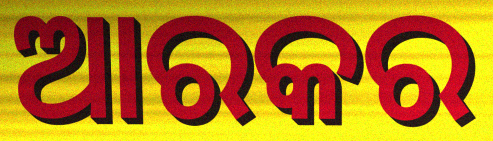
ଆରକର